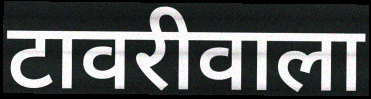
टावरीवाला